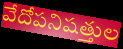
వేదోపనిషత్తుల